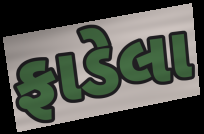
ફાડેલા